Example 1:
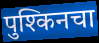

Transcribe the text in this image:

पुश्किनचा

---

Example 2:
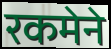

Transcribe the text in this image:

रकमेने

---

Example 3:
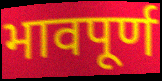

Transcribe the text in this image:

भावपूर्ण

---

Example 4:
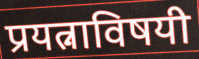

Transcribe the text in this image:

प्रयत्नाविषयी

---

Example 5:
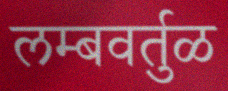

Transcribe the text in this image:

लम्बवर्तुळ